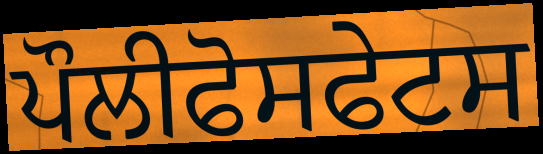
ਪੌਲੀਫੋਸਫੇਟਸ